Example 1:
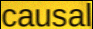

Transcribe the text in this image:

causal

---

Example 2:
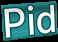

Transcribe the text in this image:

Pid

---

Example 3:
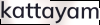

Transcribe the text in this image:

kattayam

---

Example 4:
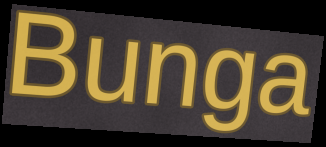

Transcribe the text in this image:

Bunga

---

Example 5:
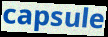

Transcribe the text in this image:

capsule